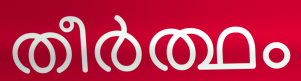
തീർത്ഥം